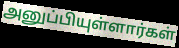
அனுப்பியுள்ளார்கள்